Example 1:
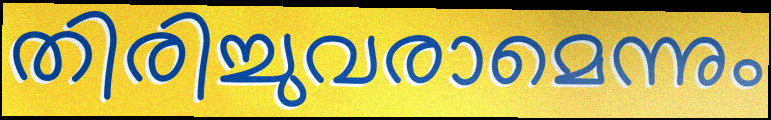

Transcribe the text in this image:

തിരിച്ചുവരാമെന്നും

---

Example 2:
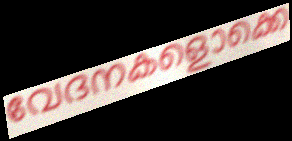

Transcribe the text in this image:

വേദനകളൊക്കെ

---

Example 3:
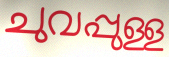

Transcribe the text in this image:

ചുവപ്പുള്ള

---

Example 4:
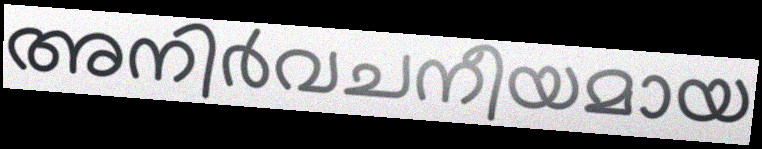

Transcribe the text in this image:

അനിർവചനീയമായ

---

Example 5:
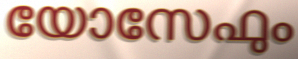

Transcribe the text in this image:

യോസേഫും